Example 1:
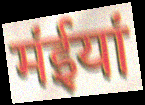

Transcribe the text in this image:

मंईयां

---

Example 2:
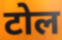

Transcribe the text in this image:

टोल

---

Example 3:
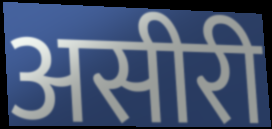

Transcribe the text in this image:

असीरी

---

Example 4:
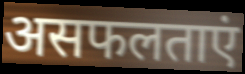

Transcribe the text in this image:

असफलताएं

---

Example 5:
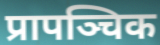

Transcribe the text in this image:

प्रापञ्चिक